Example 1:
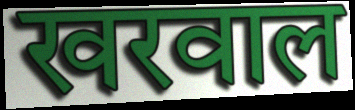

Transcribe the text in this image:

खरवाल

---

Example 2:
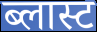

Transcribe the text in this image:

ब्लास्ट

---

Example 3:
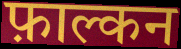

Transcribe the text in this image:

फ़ाल्कन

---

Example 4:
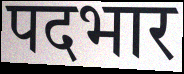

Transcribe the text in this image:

पदभार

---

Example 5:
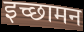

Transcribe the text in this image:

इच्छामन